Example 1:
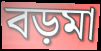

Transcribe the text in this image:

বড়মা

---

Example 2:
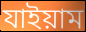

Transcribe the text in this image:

যাইয়াম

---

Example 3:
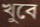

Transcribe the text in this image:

খুবে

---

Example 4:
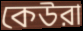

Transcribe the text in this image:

কেউরা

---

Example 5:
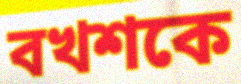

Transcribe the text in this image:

বখশকে